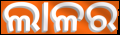
ଲାଳର